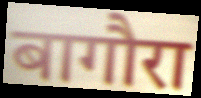
बागौरा